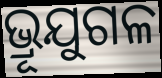
ଭ୍ରୂଯୁଗଳ